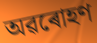
অৱৰোহণ